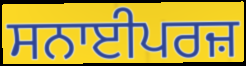
ਸਨਾਈਪਰਜ਼